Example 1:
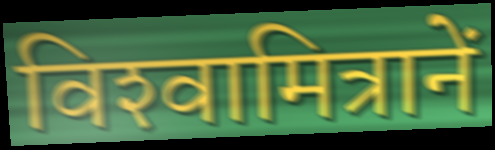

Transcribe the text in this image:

विश्वामित्रानें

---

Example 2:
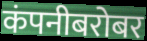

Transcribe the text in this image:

कंपनीबरोबर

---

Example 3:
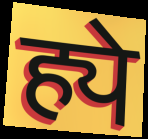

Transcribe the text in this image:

ह्ये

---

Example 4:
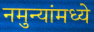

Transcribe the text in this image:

नमुन्यांमध्ये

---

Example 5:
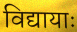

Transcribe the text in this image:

विद्यायाः